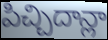
పిచ్చిదాన్లా